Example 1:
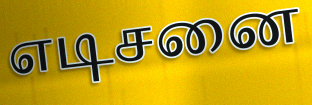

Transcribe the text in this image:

எடிசனை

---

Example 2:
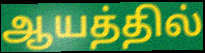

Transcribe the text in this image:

ஆயத்தில்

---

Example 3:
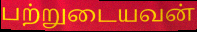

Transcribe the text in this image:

பற்றுடையவன்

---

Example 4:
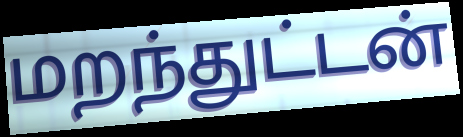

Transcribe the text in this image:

மறந்துட்டன்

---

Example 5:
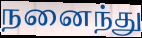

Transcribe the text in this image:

நனைந்து